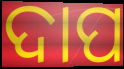
ଦାପ